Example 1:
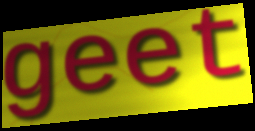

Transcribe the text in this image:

geet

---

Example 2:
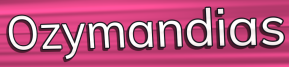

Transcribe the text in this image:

Ozymandias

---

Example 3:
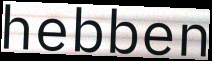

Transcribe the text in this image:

hebben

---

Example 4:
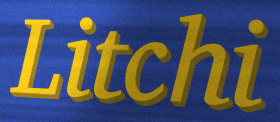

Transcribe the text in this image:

Litchi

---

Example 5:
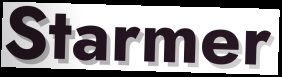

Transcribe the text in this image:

Starmer